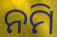
ନମି